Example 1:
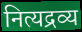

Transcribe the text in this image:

नित्यद्रव्य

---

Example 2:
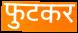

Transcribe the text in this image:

फुटकर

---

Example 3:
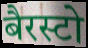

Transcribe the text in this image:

बैरस्टो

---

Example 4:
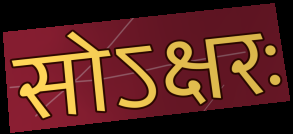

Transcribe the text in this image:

सोऽक्षरः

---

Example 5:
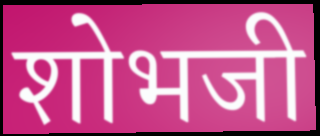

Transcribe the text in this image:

शोभजी